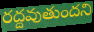
రద్దవుతుందని